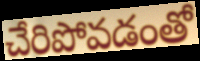
చేరిపోవడంతో